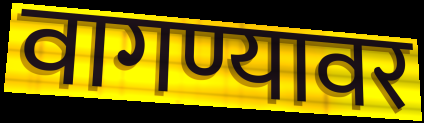
वागण्यावर